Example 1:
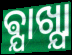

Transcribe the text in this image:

ଵ୍ଯାଖ୍ଯା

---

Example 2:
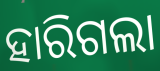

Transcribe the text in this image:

ହାରିଗଲା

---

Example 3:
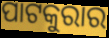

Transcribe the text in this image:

ପାଟକୁରାର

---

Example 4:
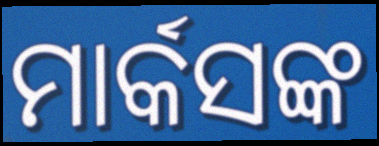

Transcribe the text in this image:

ମାର୍କସଙ୍କ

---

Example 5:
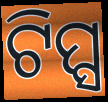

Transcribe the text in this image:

ଟିପ୍ସ